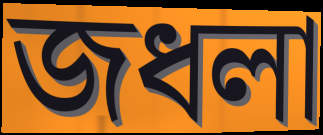
জধলা